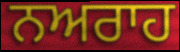
ਨਅਰਾਹ